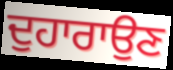
ਦੁਹਾਰਾਉਣ